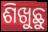
ଶିଖୁଛୁ